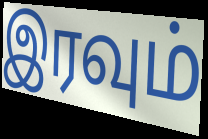
இரவும்